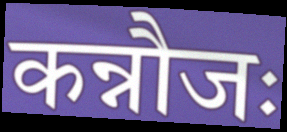
कन्नौजः